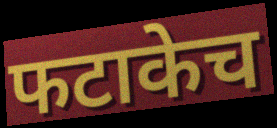
फटाकेच